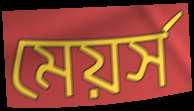
মেয়র্স